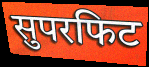
सुपरफिट